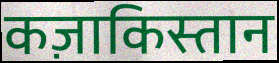
कज़ाकिस्तान